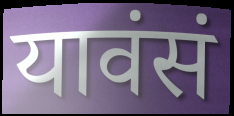
यावंसं